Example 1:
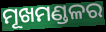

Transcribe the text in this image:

ମୂଖମଣ୍ଡଳର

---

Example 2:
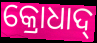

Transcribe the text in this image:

କ୍ରୋଧାଦ୍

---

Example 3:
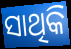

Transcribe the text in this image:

ସାଥିକି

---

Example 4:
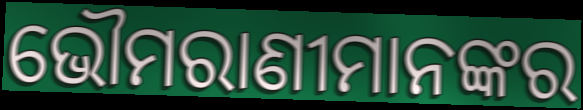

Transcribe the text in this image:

ଭୌମରାଣୀମାନଙ୍କର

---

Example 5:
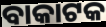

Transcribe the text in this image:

ବାକାଟକ